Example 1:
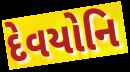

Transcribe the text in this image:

દેવયોનિ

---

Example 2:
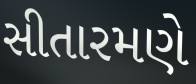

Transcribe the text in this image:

સીતારમણે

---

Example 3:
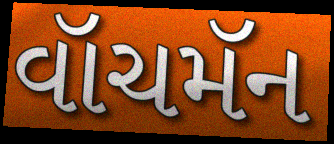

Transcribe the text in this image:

વૉચમૅન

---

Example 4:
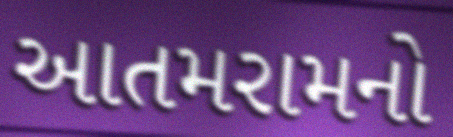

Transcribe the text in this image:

આતમરામનો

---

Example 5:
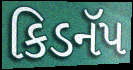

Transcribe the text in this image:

કિડનૅપ